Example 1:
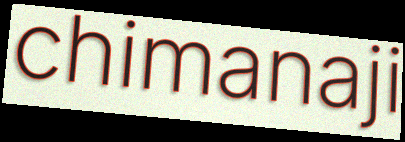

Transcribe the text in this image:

chimanaji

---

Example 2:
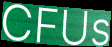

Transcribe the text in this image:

CFUs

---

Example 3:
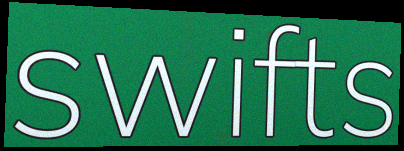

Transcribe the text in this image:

swifts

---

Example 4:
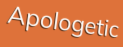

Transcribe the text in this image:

Apologetic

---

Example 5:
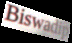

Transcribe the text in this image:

Biswadip